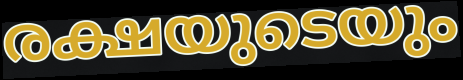
രക്ഷയുടെയും